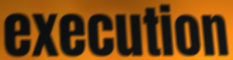
execution